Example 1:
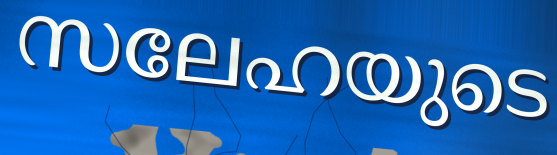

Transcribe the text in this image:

സലേഹയുടെ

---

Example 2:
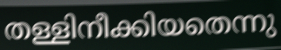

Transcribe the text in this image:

തള്ളിനീക്കിയതെന്നു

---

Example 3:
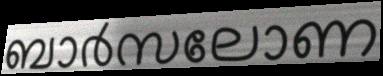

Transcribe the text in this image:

ബാർസലോണ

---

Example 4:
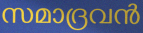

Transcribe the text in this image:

സമാദ്രവൻ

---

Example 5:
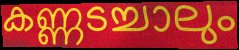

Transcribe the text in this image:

കണ്ണടച്ചാലും